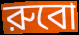
রুবো